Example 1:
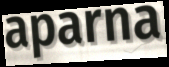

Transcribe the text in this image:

aparna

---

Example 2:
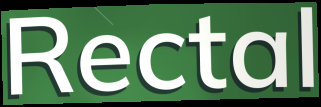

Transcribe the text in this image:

Rectal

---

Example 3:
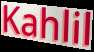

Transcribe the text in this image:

Kahlil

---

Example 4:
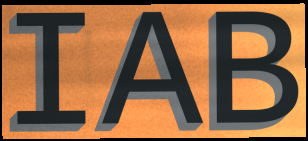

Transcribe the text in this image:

IAB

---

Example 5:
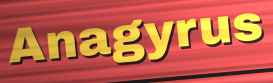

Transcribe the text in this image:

Anagyrus